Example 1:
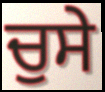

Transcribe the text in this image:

ਚੁਸੇ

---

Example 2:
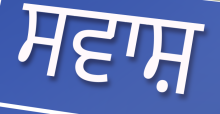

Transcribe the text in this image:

ਸਵਾਸ਼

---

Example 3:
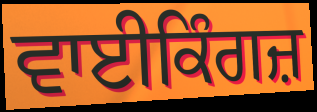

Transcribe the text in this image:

ਵਾਈਕਿੰਗਜ਼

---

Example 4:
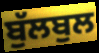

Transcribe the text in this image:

ਬੁੱਲਬੁਲ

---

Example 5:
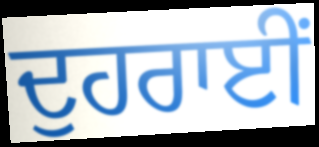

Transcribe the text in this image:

ਦੁਹਰਾਈਂ